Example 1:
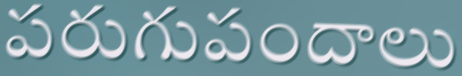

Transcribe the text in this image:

పరుగుపందాలు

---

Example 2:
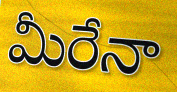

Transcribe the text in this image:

మీరేనా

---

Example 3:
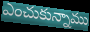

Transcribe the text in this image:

ఎంచుకున్నాము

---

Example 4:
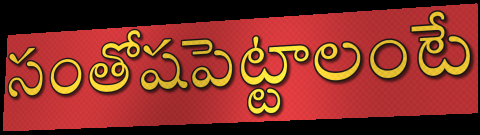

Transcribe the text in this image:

సంతోషపెట్టాలంటే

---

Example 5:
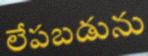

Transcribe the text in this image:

లేపబడును